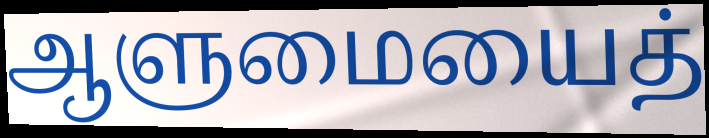
ஆளுமையைத்